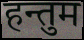
हन्तुम